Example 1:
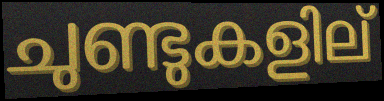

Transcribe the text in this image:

ചുണ്ടുകളില്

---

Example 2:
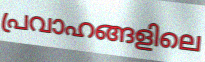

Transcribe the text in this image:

പ്രവാഹങ്ങളിലെ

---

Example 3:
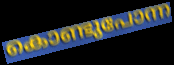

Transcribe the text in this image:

കൊണ്ടുപോന്ന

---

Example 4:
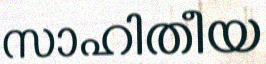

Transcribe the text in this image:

സാഹിതീയ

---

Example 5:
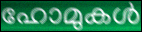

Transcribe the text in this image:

ഹോമുകൾ